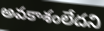
అవకాశంలేదని